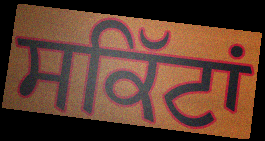
ਸਕਿੱਟਾਂ